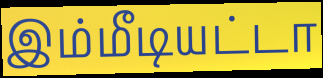
இம்மீடியட்டா